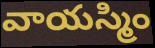
వాయస్మిం